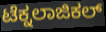
ಟೆಕ್ನಲಾಜಿಕಲ್